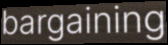
bargaining